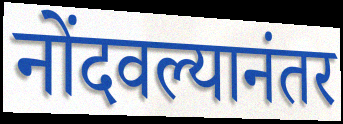
नोंदवल्यानंतर